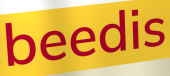
beedis